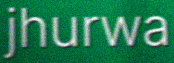
jhurwa